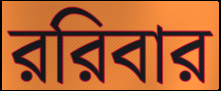
ররিবার